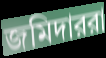
জমিদাররা